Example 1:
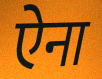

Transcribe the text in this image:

ऐना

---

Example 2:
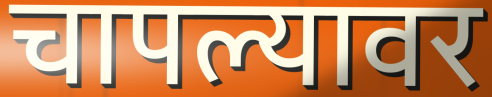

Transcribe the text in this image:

चापल्यावर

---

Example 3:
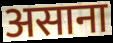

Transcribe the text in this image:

असाना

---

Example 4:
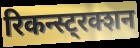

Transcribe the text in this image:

रिकन्स्ट्रक्शन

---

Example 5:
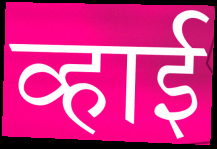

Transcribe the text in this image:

व्हाई